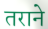
तराने